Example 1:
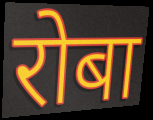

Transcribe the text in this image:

रोबा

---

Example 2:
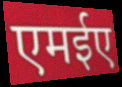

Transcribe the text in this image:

एमईए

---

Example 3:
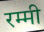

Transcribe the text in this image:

रम्मी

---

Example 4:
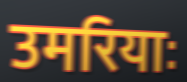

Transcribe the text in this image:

उमरियाः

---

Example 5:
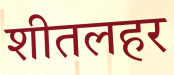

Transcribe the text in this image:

शीतलहर